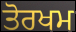
ਤੋਰਖਮ